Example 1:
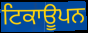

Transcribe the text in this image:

ਟਿਕਾਊਪਨ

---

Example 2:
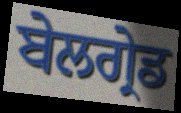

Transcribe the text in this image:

ਬੇਲਗ੍ਰੇਡ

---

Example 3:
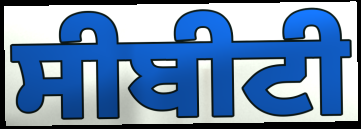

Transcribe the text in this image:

ਸੀਬੀਟੀ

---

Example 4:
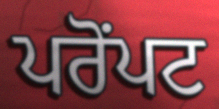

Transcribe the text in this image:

ਪਰੋਂਪਟ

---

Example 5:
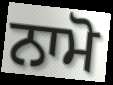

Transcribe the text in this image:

ਨਾਮੋ